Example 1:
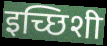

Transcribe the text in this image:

इच्छिशी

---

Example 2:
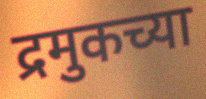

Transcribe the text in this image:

द्रमुकच्या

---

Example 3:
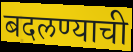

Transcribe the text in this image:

बदलण्याची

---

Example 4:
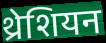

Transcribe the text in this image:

थ्रेशियन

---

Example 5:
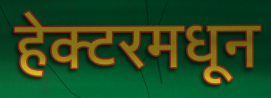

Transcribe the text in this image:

हेक्टरमधून